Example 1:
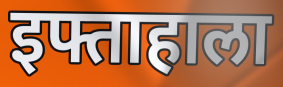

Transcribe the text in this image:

इफ्ताहाला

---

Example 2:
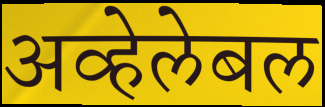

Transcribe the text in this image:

अव्हेलेबल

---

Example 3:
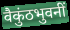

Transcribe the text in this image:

वैकुंठभुवनीं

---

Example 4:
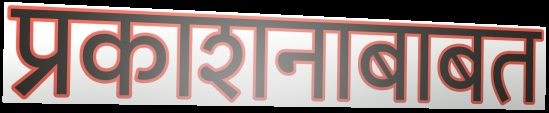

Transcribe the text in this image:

प्रकाशनाबाबत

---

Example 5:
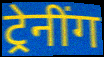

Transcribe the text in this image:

ट्रेनींग